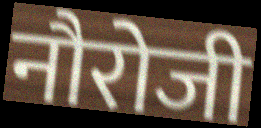
नौरोजी